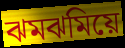
ঝমঝমিয়ে